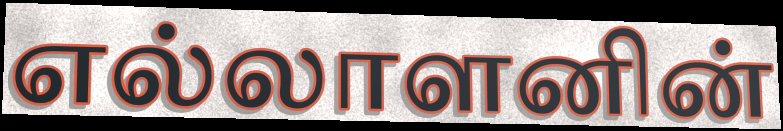
எல்லாளனின்